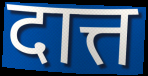
दात्त